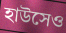
হাউসেও